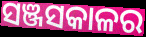
ସଞ୍ଜସକାଳର